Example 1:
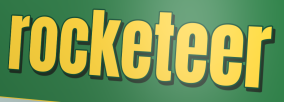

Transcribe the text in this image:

rocketeer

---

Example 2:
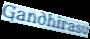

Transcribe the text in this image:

Gandhirasu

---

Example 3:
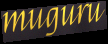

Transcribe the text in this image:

muguru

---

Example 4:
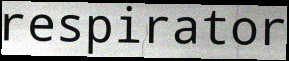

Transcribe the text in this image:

respirator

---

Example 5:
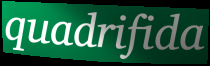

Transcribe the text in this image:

quadrifida